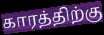
காரத்திற்கு